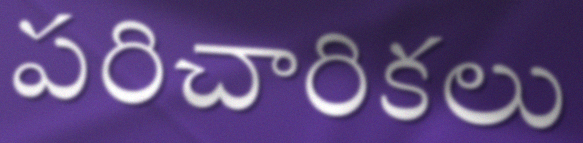
పరిచారికలు